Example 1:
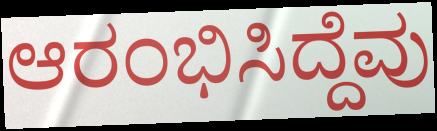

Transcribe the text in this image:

ಆರಂಭಿಸಿದ್ದೆವು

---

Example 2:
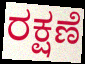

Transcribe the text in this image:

ರಕ್ಷಣೆ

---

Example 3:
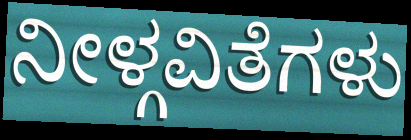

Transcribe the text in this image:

ನೀಳ್ಗವಿತೆಗಳು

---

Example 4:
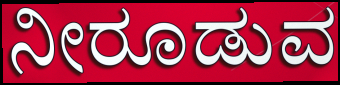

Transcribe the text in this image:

ನೀರೂಡುವ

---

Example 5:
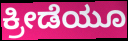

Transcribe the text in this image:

ಕ್ರೀಡೆಯೂ